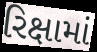
રિક્ષામાં